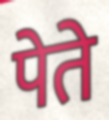
पेते